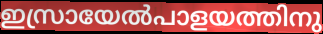
ഇസ്രായേൽപാളയത്തിനു